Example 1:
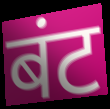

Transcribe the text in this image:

बंट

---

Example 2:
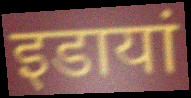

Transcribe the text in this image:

इडायां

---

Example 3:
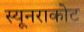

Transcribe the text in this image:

स्यूनराकोट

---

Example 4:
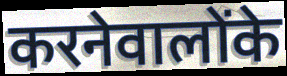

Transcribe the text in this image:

करनेवालोंके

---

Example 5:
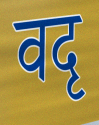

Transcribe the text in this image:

वदृ